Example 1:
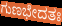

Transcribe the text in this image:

ಗುಣಭೇದತಃ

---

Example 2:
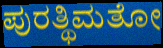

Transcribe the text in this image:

ಪುರತ್ಥಿಮತೋ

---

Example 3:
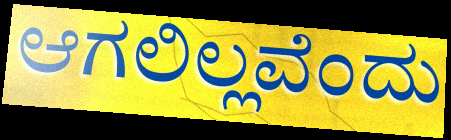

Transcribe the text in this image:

ಆಗಲಿಲ್ಲವೆಂದು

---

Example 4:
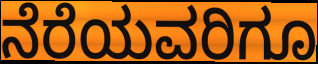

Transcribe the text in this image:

ನೆರೆಯವರಿಗೂ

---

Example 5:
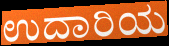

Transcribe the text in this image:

ಉದಾರಿಯ